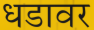
धडावर